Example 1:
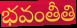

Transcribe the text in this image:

భవంతీతి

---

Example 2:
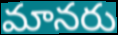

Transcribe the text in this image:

మానరు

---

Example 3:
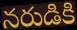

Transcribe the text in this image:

నరుడికి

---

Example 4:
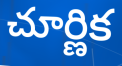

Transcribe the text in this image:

చూర్ణిక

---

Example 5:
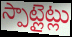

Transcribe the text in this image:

స్పాట్లైట్లు